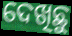
ଦେଖିଛୁ